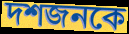
দশজনকে